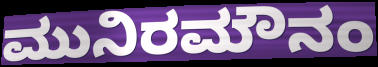
ಮುನಿರಮೌನಂ